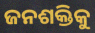
ଜନଶକ୍ତିକୁ